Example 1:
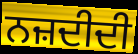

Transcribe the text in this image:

ਨਜ਼ਦੀਦੀ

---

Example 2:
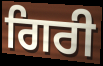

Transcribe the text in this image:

ਗਿਰੀ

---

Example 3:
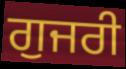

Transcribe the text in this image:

ਗੁਜਰੀ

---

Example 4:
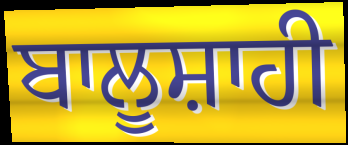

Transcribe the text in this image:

ਬਾਲੂਸ਼ਾਹੀ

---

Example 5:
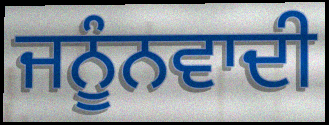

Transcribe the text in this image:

ਜਨੂੰਨਵਾਦੀ